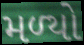
મળ્‍યો